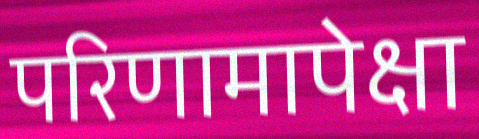
परिणामापेक्षा